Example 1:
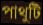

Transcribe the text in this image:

পাথুটি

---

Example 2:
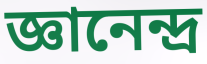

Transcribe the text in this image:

জ্ঞানেন্দ্র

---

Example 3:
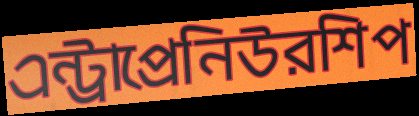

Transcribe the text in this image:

এন্ট্রাপ্রেনিউরশিপ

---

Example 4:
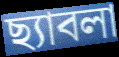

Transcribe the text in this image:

ছ্যাবলা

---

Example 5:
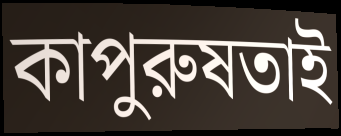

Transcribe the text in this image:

কাপুরুষতাই